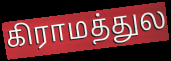
கிராமத்துல